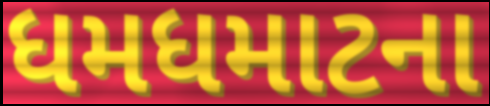
ધમધમાટના